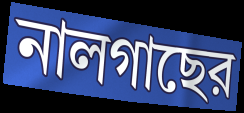
নালগাছের